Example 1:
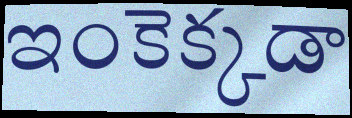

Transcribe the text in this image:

ఇంకెక్కడా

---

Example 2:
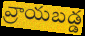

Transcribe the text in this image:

వ్రాయబడ్డ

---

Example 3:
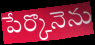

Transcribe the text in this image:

పేర్కొనెను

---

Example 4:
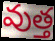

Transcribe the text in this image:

వుత్త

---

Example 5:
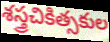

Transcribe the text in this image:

శస్త్రచికిత్సకుల